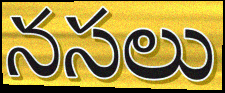
నసలు